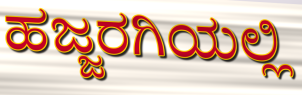
ಹಜ್ಜರಗಿಯಲ್ಲಿ